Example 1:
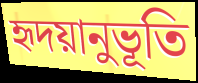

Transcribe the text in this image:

হৃদয়ানুভূতি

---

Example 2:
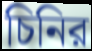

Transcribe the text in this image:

চিনির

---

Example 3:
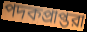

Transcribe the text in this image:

পদকপ্রাপ্তরা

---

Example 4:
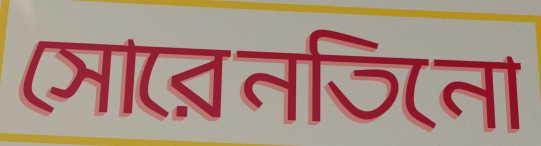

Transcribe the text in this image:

সোরেনতিনো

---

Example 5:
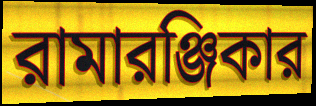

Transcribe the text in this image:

রামারঞ্জিকার